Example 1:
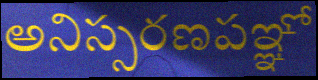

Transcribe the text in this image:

అనిస్సరణపఞ్ఞో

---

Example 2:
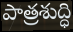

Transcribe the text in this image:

పాత్రశుద్ధి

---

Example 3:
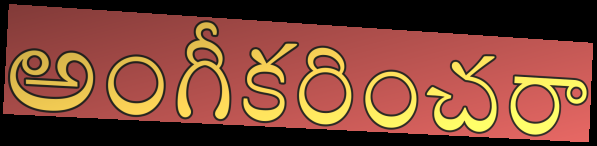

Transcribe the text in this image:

అంగీకరించరా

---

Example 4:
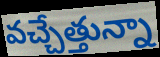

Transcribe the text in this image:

వచ్చేత్తున్నా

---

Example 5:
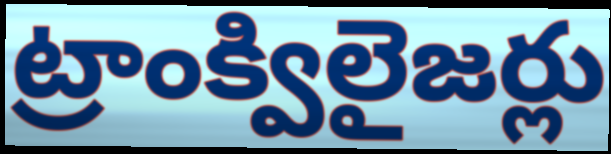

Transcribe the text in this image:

ట్రాంక్విలైజర్లు